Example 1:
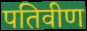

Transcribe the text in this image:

पतिवीण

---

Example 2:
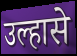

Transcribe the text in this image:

उल्हासे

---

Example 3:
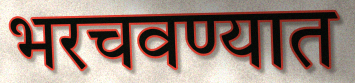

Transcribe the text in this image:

भरचवण्यात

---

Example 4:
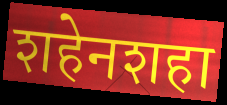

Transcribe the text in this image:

शहेनशहा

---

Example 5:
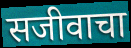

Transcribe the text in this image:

सजीवाचा